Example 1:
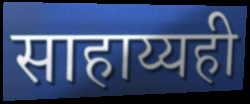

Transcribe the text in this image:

साहाय्यही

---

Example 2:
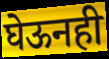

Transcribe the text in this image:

घेऊनही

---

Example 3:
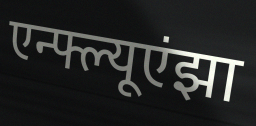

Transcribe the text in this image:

एन्फ्ल्यूएंझा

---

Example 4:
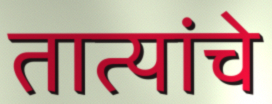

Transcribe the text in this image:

तात्यांचे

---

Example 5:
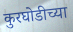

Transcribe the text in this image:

कुरघोडीच्या